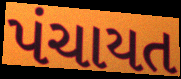
પંચાયત